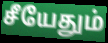
சீயேதும்